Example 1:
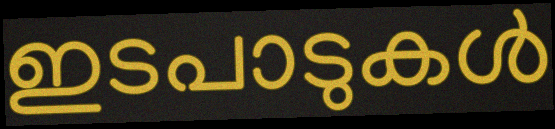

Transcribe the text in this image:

ഇടപാടുകൾ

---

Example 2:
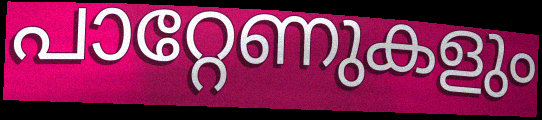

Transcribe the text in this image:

പാറ്റേണുകളും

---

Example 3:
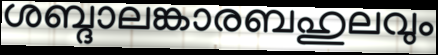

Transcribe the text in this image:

ശബ്ദാലങ്കാരബഹുലവും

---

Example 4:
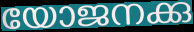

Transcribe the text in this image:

യോജനക്കു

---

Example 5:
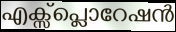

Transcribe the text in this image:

എക്സ്പ്ലൊറേഷൻ